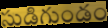
సుడిగుండం